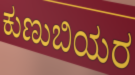
ಕುಣುಬಿಯರ